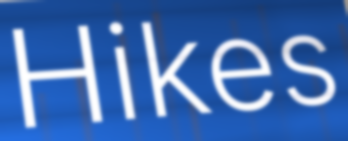
Hikes